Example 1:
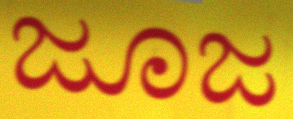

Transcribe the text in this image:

ಜೂಜ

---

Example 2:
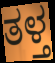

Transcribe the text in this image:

ತಳ್ತ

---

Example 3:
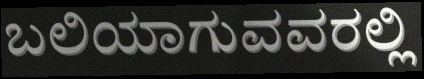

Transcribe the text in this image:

ಬಲಿಯಾಗುವವರಲ್ಲಿ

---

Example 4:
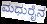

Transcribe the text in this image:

ಮಧುರೈನ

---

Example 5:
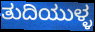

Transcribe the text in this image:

ತುದಿಯುಳ್ಳ